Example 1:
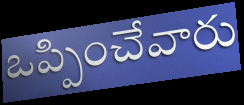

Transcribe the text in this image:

ఒప్పించేవారు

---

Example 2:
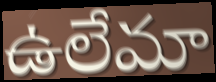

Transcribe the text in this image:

ఉలేమా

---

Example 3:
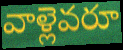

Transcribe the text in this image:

వాళ్లెవరూ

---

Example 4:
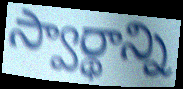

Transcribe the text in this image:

స్వార్థాన్ని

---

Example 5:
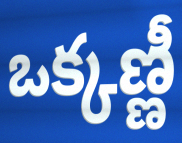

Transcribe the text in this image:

ఒక్కణ్ణీ